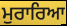
ਮੁਰਾਰਿਆ